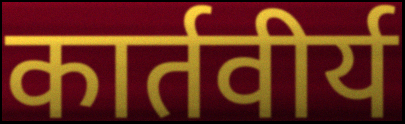
कार्तवीर्य